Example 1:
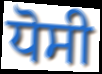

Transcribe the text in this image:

ਧੋਸੀ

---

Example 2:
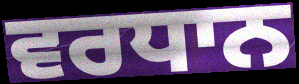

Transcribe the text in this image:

ਵਰਧਾਨ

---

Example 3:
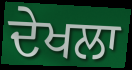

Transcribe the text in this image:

ਦੇਖਲਾ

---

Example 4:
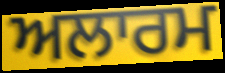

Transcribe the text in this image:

ਅਲਾਰਮ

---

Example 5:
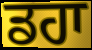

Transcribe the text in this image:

ਡਹਾ